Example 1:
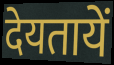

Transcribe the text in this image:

देयतायें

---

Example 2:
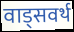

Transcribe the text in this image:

वाड्सवर्थ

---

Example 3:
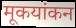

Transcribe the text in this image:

मूकयांकन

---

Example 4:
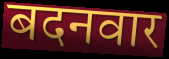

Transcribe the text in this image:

बदनवार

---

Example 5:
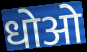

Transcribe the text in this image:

धोओ